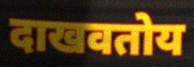
दाखवतोय